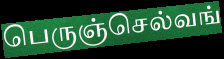
பெருஞ்செல்வங்